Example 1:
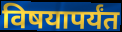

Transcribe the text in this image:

विषयापर्यंत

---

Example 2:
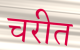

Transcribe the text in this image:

चरीत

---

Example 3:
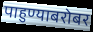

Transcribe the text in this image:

पाहुण्याबरोबर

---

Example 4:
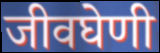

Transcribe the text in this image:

जीवघेणी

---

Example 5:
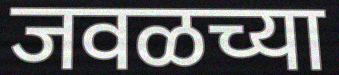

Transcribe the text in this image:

जवळच्या